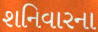
શનિવારના